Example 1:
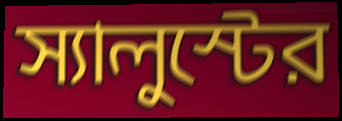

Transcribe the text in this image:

স্যালুস্টের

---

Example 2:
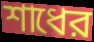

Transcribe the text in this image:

শাধের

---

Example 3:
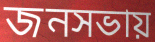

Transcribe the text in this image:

জনসভায়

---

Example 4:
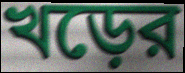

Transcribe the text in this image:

খড়ের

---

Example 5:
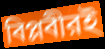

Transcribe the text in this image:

বিপ্লবীরই